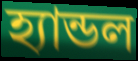
হ্যান্ডল